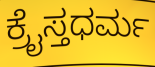
ಕ್ರೈಸ್ತಧರ್ಮ